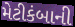
મેટીકંબાની